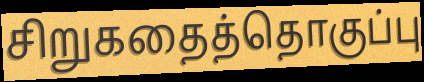
சிறுகதைத்தொகுப்பு